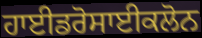
ਹਾਈਡਰੋਸਾਈਕਲੋਨ